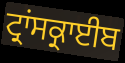
ਟ੍ਰਾਂਸਕ੍ਰਾਈਬ